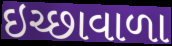
ઇચ્છાવાળા